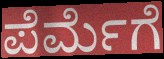
ಪೆರ್ಮೆಗೆ